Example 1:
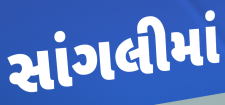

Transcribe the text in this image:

સાંગલીમાં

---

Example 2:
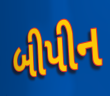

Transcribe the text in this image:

બીપીન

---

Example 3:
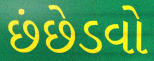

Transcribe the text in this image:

છંછેડવો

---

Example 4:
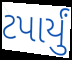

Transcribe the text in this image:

ટપાર્યું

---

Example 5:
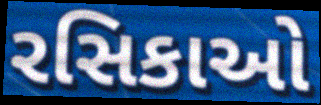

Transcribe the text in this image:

રસિકાઓ